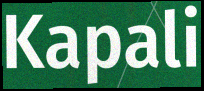
Kapali